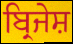
ਬ੍ਰਿਜੇਸ਼